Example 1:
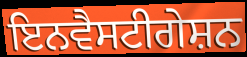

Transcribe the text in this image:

ਇਨਵੈਸਟੀਗੇਸ਼ਨ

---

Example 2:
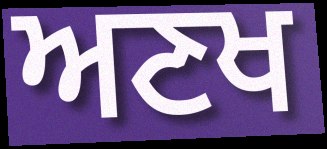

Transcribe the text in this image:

ਅਣਖ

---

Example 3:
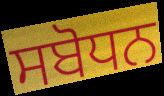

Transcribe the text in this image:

ਸਬੋਧਨ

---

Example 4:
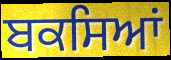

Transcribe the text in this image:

ਬਕਸਿਆਂ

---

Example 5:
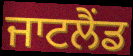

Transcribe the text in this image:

ਜਾਟਲੈਂਡ